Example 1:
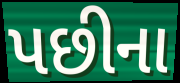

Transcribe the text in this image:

પછીના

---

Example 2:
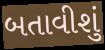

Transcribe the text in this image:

બતાવીશું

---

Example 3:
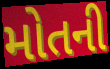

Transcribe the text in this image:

મોતની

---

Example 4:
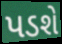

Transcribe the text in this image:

પડશે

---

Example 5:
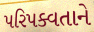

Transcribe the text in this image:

પરિપક્વતાને